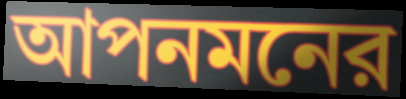
আপনমনের